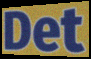
Det